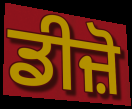
ਡੀਜ਼ੋ